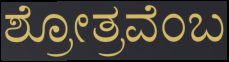
ಶ್ರೋತ್ರವೆಂಬ